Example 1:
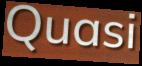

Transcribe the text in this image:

Quasi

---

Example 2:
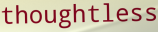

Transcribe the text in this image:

thoughtless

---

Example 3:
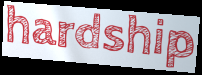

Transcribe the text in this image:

hardship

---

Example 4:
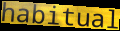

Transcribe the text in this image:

habitual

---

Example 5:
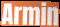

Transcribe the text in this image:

Armin